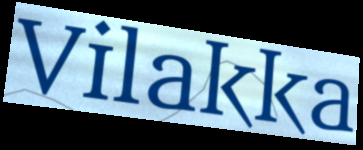
Vilakka